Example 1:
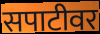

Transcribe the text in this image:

सपाटीवर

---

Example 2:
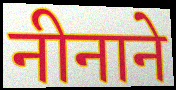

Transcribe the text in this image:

नीनाने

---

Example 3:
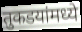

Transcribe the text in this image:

तुकडयांमध्ये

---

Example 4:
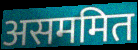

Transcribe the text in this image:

असममित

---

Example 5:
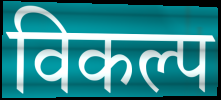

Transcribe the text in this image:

विकल्प